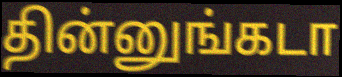
தின்னுங்கடா